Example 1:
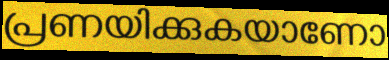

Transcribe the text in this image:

പ്രണയിക്കുകയാണോ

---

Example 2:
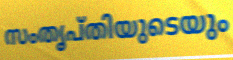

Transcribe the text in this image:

സംതൃപ്തിയുടെയും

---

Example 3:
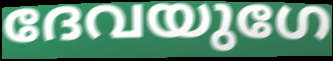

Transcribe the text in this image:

ദേവയുഗേ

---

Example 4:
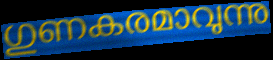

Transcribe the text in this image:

ഗുണകരമാവുന്നു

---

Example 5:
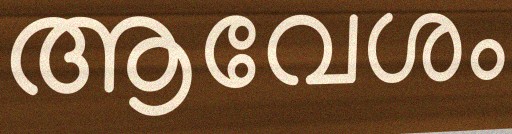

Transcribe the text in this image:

ആവേശം